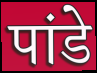
पांडे